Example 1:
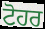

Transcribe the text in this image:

ਟੋਹਰ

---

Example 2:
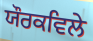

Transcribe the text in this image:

ਯੌਰਕਵਿਲੇ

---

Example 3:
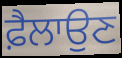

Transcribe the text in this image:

ਫ਼ੈਲਾਉਣ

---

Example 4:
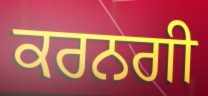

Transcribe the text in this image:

ਕਰਨਗੀ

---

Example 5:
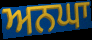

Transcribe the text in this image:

ਅਨਘਾ